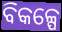
ବିକଳ୍ପେ